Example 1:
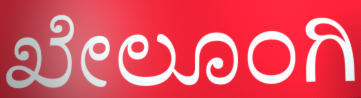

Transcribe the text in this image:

ಖೇಲೂಂಗಿ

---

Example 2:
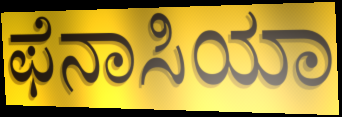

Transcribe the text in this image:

ಫೆನಾಸಿಯಾ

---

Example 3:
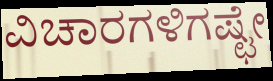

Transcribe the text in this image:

ವಿಚಾರಗಳಿಗಷ್ಟೇ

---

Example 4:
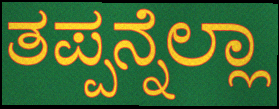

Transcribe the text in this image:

ತಪ್ಪನ್ನೆಲ್ಲಾ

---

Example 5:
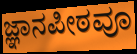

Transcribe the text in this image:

ಜ್ಞಾನಪೀಠವೂ